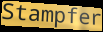
Stampfer